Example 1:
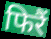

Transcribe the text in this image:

फिरैं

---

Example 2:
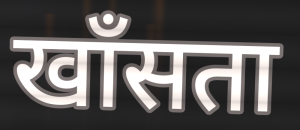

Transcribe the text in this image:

खाँसता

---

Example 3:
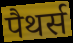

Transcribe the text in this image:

पैथर्स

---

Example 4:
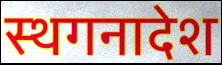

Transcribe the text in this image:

स्थगनादेश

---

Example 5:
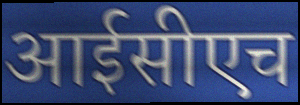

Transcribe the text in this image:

आईसीएच